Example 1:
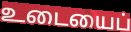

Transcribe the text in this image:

உடையைப்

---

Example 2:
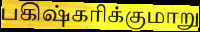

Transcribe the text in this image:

பகிஷ்கரிக்குமாறு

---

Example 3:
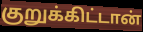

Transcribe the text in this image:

குறுக்கிட்டான்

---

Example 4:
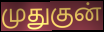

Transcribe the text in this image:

முதுகுன்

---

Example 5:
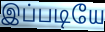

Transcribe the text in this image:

இப்படியே